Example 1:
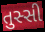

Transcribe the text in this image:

તુસ્સી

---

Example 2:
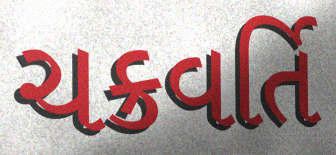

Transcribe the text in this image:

ચક્રવર્તિ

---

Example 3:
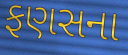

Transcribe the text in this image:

ફણસના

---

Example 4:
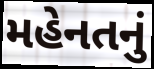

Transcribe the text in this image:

મહેનતનું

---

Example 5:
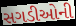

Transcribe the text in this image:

સગડીઓની